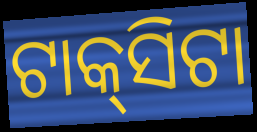
ଟାକ୍‌ସିଟା